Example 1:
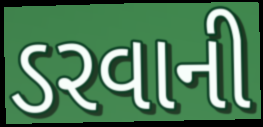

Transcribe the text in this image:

ડરવાની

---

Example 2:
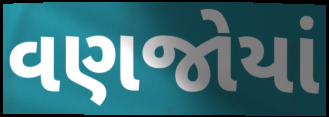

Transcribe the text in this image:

વણજોયાં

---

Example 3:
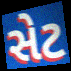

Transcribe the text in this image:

સેટ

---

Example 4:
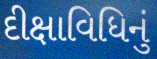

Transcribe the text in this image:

દીક્ષાવિધિનું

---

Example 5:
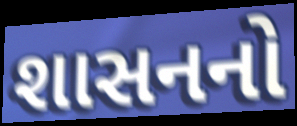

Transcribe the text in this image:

શાસનનો